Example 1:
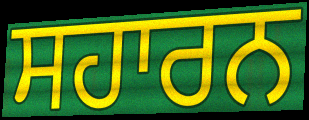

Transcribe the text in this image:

ਸਹਾਰਨ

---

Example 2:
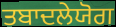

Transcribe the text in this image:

ਤਬਾਦਲੇਯੋਗ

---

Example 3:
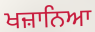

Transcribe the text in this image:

ਖਜ਼ਾਨਿਆ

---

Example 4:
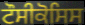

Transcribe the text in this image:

ਟੌਸੀਕੋਸਿਸ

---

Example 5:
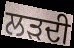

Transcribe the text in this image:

ਲੜਦੀ